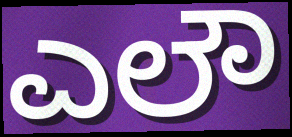
ಎಲೌ